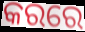
କରରେ